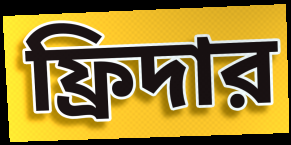
ফ্রিদার